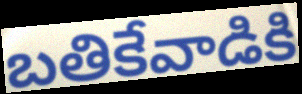
బతికేవాడికి